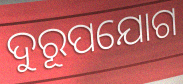
ଦୁରୂପଯୋଗ